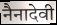
नैनादेवी